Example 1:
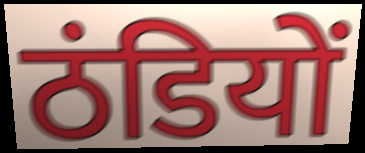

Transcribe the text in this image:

ठंडियों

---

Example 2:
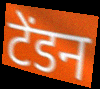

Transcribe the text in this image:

टेंडन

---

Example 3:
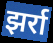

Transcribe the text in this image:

झर्रा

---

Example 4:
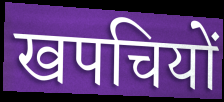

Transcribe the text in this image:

खपचियों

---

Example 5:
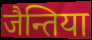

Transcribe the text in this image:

जैन्तिया